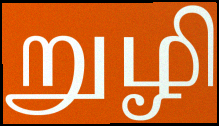
றுழி